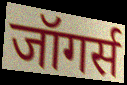
जॉगर्स